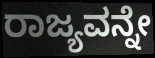
ರಾಜ್ಯವನ್ನೇ